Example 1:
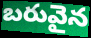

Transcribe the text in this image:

బరువైన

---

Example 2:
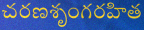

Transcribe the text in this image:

చరణశృంగరహిత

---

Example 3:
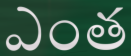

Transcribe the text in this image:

ఎంత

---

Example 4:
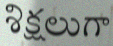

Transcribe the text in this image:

శిక్షలుగా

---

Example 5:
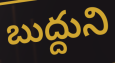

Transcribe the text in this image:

బుద్దుని